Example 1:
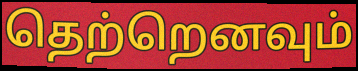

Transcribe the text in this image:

தெற்றெனவும்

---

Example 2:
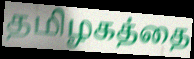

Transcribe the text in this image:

தமிழகத்தை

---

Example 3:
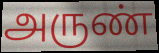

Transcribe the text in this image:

அருண்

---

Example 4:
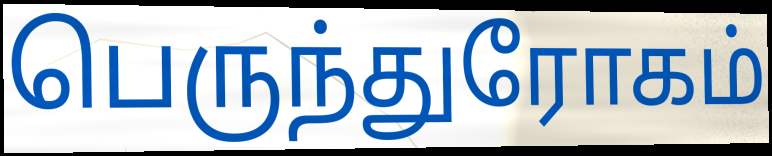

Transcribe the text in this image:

பெருந்துரோகம்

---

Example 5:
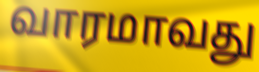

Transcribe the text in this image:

வாரமாவது